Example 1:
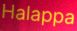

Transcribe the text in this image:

Halappa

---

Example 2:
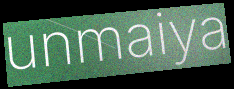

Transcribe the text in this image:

unmaiya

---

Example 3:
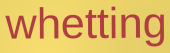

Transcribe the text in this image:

whetting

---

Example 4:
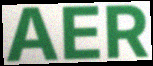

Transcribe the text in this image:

AER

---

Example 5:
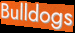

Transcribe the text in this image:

Bulldogs